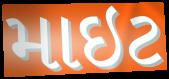
માઇટ